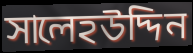
সালেহউদ্দিন